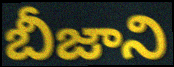
బీజాని